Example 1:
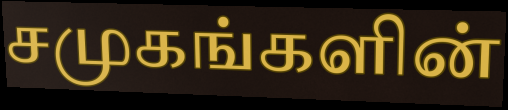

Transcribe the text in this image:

சமுகங்களின்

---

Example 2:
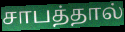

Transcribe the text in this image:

சாபத்தால்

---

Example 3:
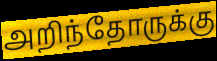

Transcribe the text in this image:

அறிந்தோருக்கு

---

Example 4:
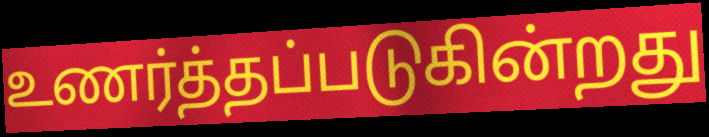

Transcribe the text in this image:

உணர்த்தப்படுகின்றது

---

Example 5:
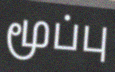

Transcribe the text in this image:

மூப்பு